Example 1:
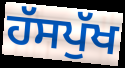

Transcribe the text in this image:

ਹੱਸਪੁੱਖ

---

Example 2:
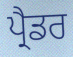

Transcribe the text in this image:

ਪ੍ਰੈਡਰ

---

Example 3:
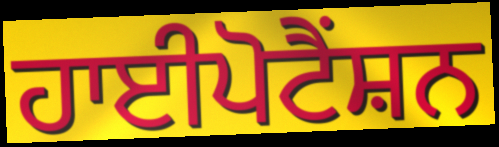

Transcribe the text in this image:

ਹਾਈਪੋਟੈਂਸ਼ਨ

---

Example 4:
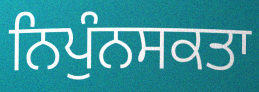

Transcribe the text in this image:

ਨਿਪੁੰਨਸਕਤਾ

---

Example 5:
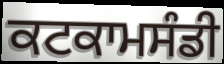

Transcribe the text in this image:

ਕਟਕਾਮਸੰਡੀ